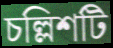
চল্লিশটি